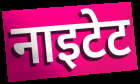
नाइटेट